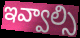
ఇవ్వాల్సి